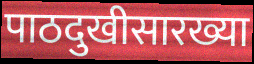
पाठदुखीसारख्या